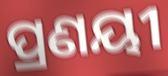
ପ୍ରଣୟୀ